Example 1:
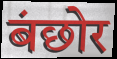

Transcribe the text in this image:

बंछोर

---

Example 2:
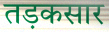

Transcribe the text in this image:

तड़कसार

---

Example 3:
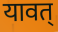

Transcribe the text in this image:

यावत्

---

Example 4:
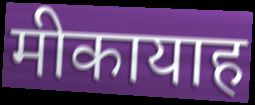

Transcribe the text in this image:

मीकायाह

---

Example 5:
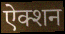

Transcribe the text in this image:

ऐक्शन